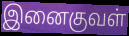
இனைகுவள்